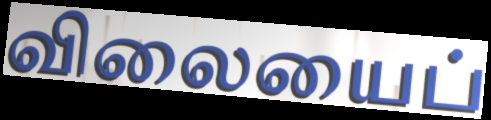
விலையைப்